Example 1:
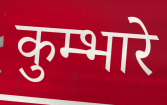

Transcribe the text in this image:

कुम्भारे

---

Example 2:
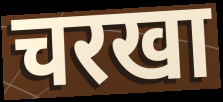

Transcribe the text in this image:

चरखा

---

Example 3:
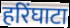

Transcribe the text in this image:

हरिंघाटा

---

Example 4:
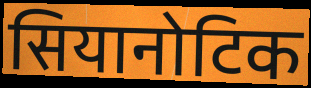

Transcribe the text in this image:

सियानोटिक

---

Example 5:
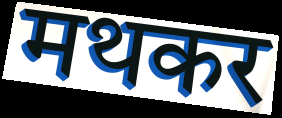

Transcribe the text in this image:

मथकर